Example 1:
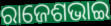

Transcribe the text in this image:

ରାଜେଶଭାଇ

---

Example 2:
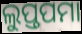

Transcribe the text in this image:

ଲୁପ୍ତପମା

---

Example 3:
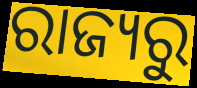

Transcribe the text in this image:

ରାଜ୍ୟରୁ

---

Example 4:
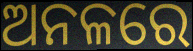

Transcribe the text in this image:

ଅନଳରେ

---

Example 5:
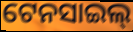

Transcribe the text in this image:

ଟେନସାଇଲ୍